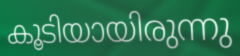
കൂടിയായിരുന്നു